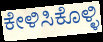
ಕೇಳಿಸಿಕೊಳ್ಳಿ